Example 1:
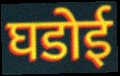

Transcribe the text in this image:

घडोई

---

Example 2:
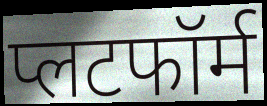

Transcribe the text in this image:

प्लटफॉर्म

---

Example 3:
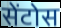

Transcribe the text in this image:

सेंटोस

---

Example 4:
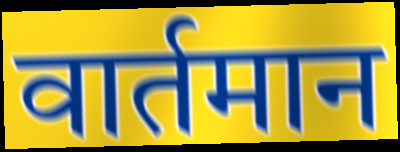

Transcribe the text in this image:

वार्तमान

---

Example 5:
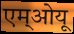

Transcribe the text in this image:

एम्ओयू